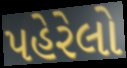
પહેરેલો